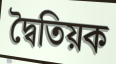
দ্বৈতিয়ক